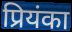
प्रियंका